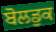
ਬੋਲਡੁਕ